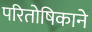
परितोषिकाने